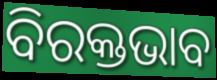
ବିରକ୍ତଭାବ